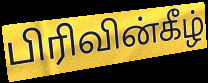
பிரிவின்கீழ்